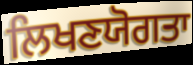
ਲਿਖਣਯੋਗਤਾ